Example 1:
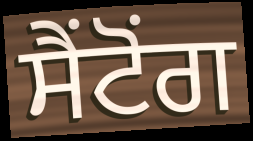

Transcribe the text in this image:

ਸੈਂਟੋਂਗ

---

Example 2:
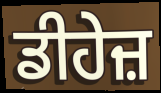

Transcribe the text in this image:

ਡੀਹੇਜ਼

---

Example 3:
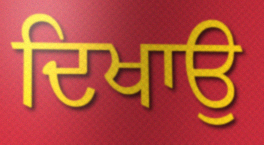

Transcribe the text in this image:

ਦਿਖਾਉ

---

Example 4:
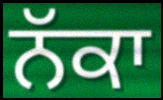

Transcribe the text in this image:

ਨੱਕਾ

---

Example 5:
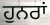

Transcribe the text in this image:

ਹੁਨਰਾਂ